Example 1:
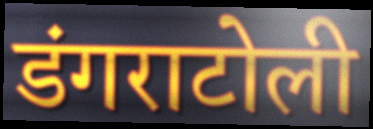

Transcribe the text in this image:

डंगराटोली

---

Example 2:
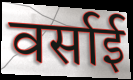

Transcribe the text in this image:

वर्साई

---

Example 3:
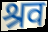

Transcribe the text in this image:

श्रव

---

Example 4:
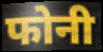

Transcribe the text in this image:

फोनी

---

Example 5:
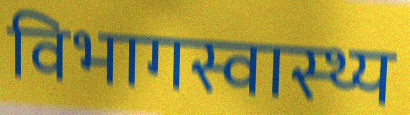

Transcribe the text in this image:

विभागस्वास्थ्य